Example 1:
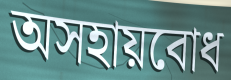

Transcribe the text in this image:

অসহায়বোধ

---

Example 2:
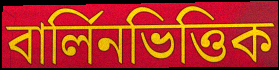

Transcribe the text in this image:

বার্লিনভিত্তিক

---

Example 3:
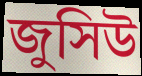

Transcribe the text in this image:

জুসিউ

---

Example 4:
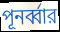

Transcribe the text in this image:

পূনর্ব্বার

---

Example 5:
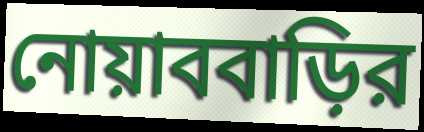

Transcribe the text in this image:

নোয়াববাড়ির